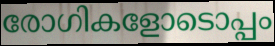
രോഗികളോടൊപ്പം